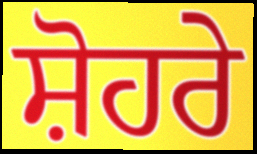
ਸ਼ੋਹਰੇ